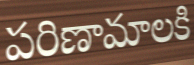
పరిణామాలకి